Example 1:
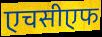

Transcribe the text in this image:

एचसीएफ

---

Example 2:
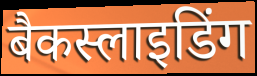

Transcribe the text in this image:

बैकस्लाइडिंग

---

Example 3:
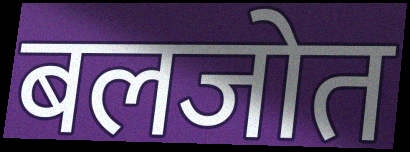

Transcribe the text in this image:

बलजोत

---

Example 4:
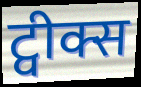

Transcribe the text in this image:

ट्वीक्स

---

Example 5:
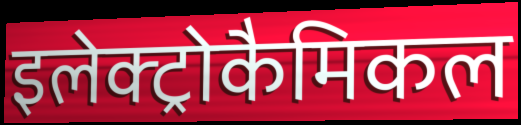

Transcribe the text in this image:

इलेक्ट्रोकैमिकल